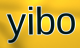
yibo